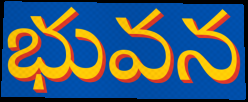
భువన